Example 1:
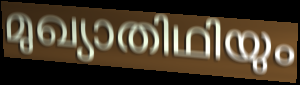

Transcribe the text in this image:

മുഖ്യാതിഥിയും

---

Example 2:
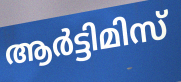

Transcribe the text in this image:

ആർട്ടിമിസ്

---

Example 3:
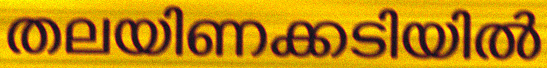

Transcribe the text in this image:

തലയിണക്കടിയിൽ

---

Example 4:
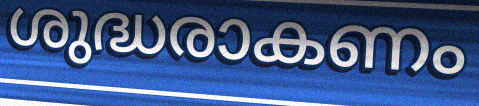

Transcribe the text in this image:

ശുദ്ധരാകണം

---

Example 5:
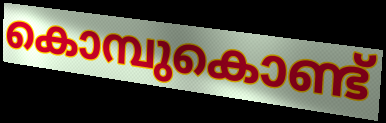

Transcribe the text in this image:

കൊമ്പുകൊണ്ട്